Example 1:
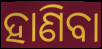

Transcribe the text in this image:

ହାଣିବା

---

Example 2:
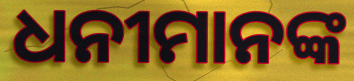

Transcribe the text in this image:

ଧନୀମାନଙ୍କ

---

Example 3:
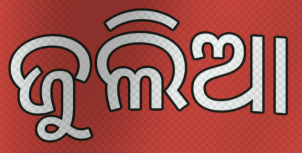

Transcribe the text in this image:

ଜୁଲିଆ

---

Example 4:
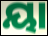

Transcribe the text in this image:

ୟା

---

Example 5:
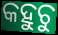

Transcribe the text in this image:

କହୁଚୁ